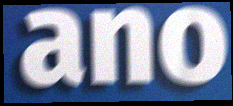
ano